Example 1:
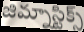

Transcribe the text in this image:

జిమ్నాస్టిక్స్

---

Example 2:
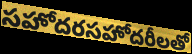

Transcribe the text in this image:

సహోదరసహోదరీలతో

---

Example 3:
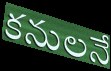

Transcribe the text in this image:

కనులనే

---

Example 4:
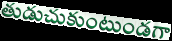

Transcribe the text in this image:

తుడుచుకుంటుండగా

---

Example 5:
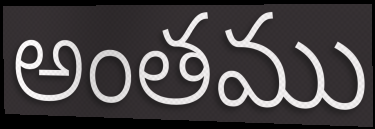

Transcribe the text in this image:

అంతము